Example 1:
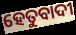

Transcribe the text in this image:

ହେତୁବାଦୀ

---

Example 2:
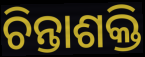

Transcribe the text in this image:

ଚିନ୍ତାଶକ୍ତି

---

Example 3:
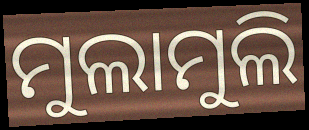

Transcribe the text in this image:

ମୁଲାମୁଲି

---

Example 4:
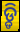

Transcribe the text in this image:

ଡ଼୍ଡି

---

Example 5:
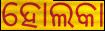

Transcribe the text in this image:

ହୋଲକା